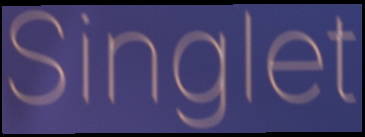
Singlet